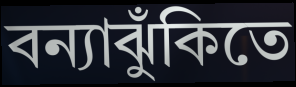
বন্যাঝুঁকিতে